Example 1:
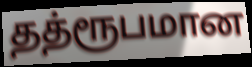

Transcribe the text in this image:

தத்ரூபமான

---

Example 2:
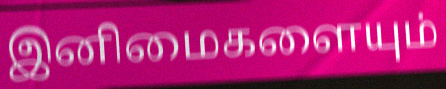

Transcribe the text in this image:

இனிமைகளையும்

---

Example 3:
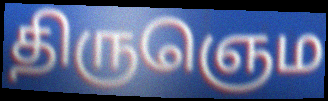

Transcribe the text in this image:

திருஞெம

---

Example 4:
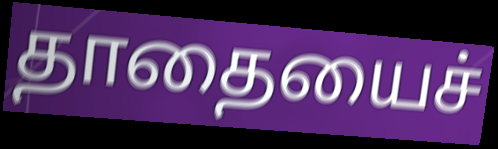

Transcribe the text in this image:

தாதையைச்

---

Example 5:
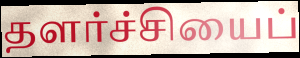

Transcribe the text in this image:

தளர்ச்சியைப்